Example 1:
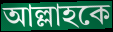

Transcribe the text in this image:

আল্লাহকে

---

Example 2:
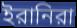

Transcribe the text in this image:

ইরানিরা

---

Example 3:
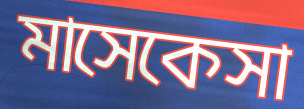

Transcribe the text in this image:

মাসেকেসা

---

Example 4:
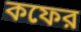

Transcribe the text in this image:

কফের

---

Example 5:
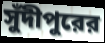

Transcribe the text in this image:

সুঁদীপুরের